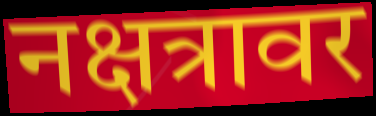
नक्षत्रावर